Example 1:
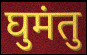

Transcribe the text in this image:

घुमंतु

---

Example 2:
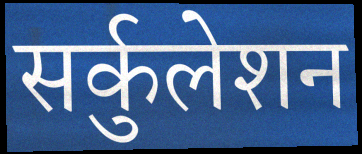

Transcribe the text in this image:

सर्कुलेशन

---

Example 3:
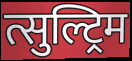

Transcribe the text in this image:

त्सुल्ट्रिम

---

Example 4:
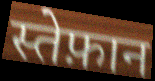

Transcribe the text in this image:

स्तेफ़ान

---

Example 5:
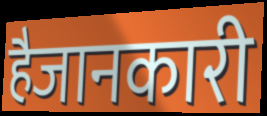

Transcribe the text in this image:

हैजानकारी